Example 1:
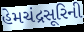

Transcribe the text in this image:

હેમચંદ્રસૂરિની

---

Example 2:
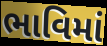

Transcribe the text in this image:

ભાવિમાં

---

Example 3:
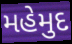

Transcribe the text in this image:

મહેમુદ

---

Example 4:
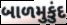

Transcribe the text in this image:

બાળમુકુંદ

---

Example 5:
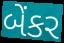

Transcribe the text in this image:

બેંકર